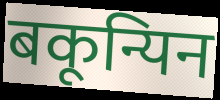
बकून्यिन